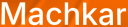
Machkar